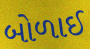
બોળાઈ